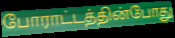
போராட்டத்தின்போது